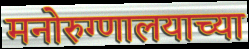
मनोरुग्णालयाच्या